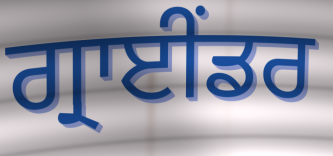
ਗ੍ਰਾਈਂਡਰ